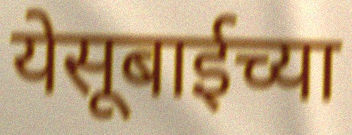
येसूबाईच्या